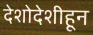
देशोदेशीहून